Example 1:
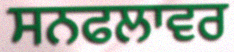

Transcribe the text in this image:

ਸਨਫਲਾਵਰ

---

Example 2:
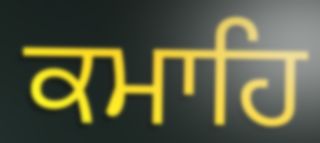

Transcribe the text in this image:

ਕਮਾਹਿ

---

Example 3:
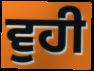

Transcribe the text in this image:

ਵੁਹੀ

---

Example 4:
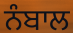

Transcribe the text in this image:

ਨੰਬਾਲ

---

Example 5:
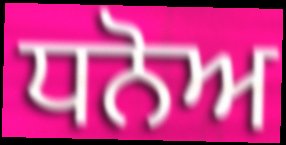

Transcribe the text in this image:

ਧਨੋਅ